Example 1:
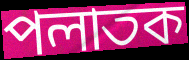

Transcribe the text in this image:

পলাতক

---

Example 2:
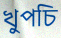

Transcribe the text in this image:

খুপচি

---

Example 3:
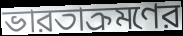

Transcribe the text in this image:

ভারতাক্রমণের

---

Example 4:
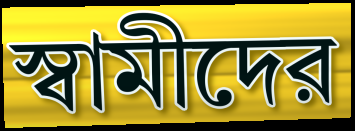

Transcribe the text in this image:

স্বামীদের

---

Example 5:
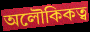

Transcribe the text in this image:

অলৌকিকত্ব